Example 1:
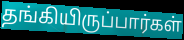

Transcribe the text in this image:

தங்கியிருப்பார்கள்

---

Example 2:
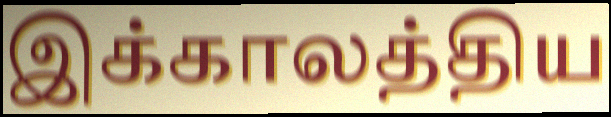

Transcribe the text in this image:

இக்காலத்திய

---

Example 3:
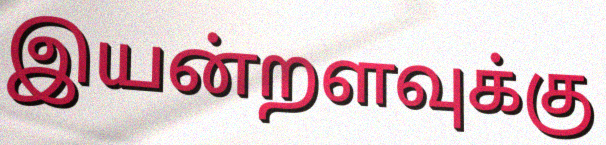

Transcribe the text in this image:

இயன்றளவுக்கு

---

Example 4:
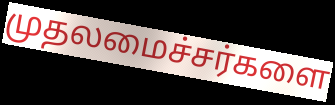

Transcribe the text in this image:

முதலமைச்சர்களை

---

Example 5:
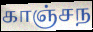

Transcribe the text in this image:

காஞ்சந